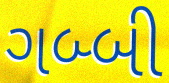
ગબ્બી